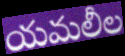
యమలీల